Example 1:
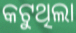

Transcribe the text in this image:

କଟୁଥିଲା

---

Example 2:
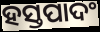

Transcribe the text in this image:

ହସ୍ତପାଦଂ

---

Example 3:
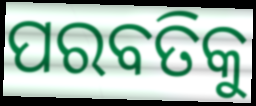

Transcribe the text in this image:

ପରବତିକୁ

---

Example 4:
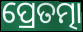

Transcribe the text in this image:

ପ୍ରେତତ୍ମା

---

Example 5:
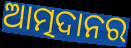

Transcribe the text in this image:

ଆତ୍ମଦାନର